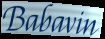
Babavin